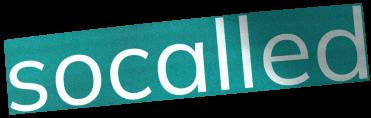
socalled